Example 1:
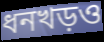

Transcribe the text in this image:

ধনখড়ও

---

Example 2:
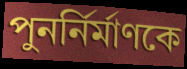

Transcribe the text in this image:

পুনর্নির্মাণকে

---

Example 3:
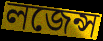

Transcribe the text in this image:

লজেন্স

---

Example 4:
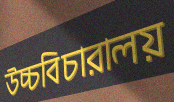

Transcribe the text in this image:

উচ্চবিচারালয়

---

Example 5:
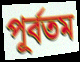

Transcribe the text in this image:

পূর্বতম